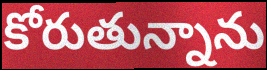
కోరుతున్నాను